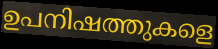
ഉപനിഷത്തുകളെ